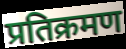
प्रतिक्रमण